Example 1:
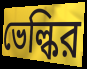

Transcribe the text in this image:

ভেল্কির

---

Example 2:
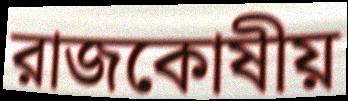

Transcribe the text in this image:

রাজকোষীয়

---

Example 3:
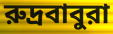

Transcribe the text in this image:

রুদ্রবাবুরা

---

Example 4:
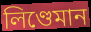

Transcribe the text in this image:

লিণ্ডেমান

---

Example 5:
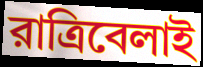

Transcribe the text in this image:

রাত্রিবেলাই